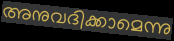
അനുവദിക്കാമെന്നു